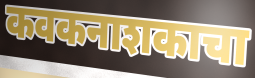
कवकनाशकाचा